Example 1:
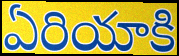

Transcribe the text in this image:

ఏరియాకి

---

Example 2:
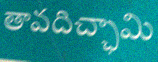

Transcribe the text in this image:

తావదిచ్ఛామి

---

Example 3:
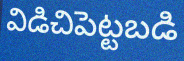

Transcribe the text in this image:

విడిచిపెట్టబడి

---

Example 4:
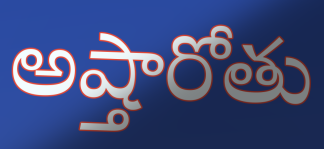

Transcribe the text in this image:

అష్తారోతు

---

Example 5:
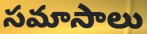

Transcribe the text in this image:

సమాసాలు